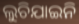
ଲୁଚିଯାଇନି